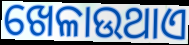
ଖେଳାଉଥାଏ